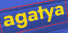
agatya